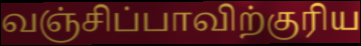
வஞ்சிப்பாவிற்குரிய